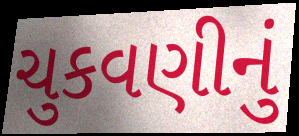
ચુકવણીનું